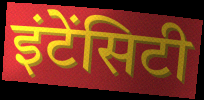
इंटेंसिटी